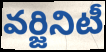
వర్జినిటీ